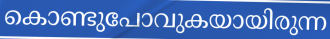
കൊണ്ടുപോവുകയായിരുന്ന